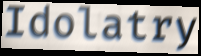
Idolatry